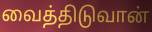
வைத்திடுவான்